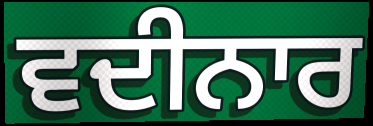
ਵਦੀਨਾਰ